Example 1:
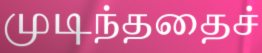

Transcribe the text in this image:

முடிந்ததைச்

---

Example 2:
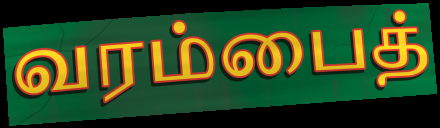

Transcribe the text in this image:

வரம்பைத்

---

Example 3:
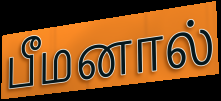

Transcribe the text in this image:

பீமனால்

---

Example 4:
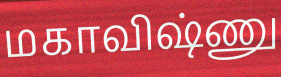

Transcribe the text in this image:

மகாவிஷ்ணு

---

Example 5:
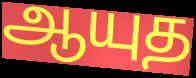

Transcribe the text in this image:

ஆயுத